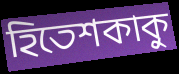
হিতেশকাকু